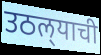
उठल्याची